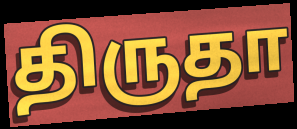
திருதா